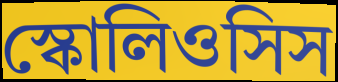
স্কোলিওসিস